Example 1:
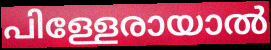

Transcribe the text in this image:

പിള്ളേരായാൽ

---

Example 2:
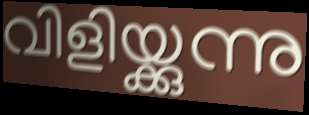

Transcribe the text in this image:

വിളിയ്ക്കുന്നു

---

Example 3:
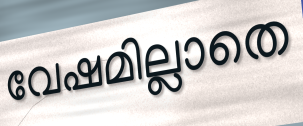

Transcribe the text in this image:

വേഷമില്ലാതെ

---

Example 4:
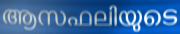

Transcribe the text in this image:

ആസഫലിയുടെ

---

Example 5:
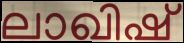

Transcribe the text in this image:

ലാഖിഷ്